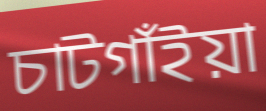
চাটগাঁইয়া